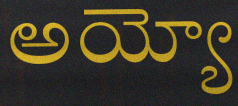
అయ్యో